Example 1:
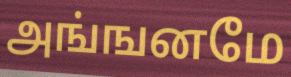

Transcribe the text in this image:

அங்ஙனமே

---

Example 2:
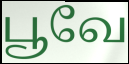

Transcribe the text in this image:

பூவே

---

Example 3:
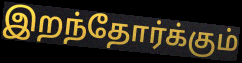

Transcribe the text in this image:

இறந்தோர்க்கும்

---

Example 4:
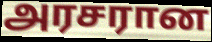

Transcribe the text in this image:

அரசரான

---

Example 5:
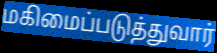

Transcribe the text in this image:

மகிமைப்படுத்துவார்